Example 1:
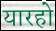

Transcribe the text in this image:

यारहो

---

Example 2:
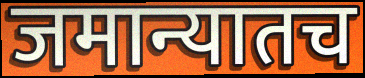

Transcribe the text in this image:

जमान्यातच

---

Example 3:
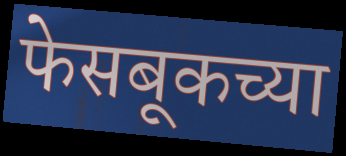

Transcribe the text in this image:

फेसबूकच्या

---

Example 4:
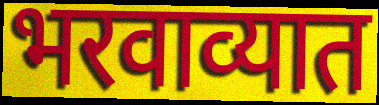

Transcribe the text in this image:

भरवाव्यात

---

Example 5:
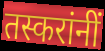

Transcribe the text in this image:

तस्करांनीं